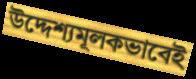
উদ্দেশ্যমূলকভাবেই